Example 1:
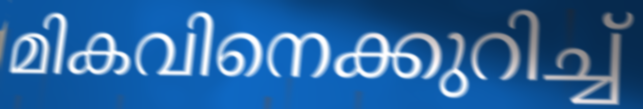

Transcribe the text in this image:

മികവിനെക്കുറിച്ച്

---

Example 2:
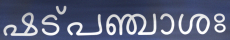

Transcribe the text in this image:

ഷട്പഞ്ചാശഃ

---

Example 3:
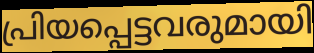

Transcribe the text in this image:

പ്രിയപ്പെട്ടവരുമായി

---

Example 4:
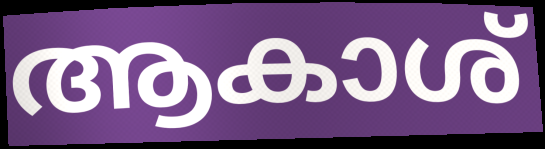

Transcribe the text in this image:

ആകാശ്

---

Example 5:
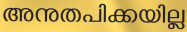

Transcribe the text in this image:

അനുതപിക്കയില്ല